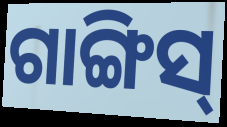
ଗାଙ୍ଗିସ୍